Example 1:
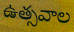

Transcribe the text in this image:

ఉత్సవాల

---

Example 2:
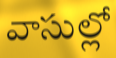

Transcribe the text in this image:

వాసుల్లో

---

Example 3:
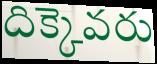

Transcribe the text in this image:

దిక్కెవరు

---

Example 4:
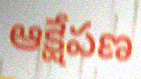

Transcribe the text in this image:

ఆక్షేపణ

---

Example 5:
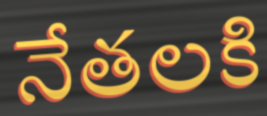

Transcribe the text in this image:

నేతలకి